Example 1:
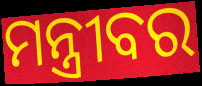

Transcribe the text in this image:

ମନ୍ତ୍ରୀବର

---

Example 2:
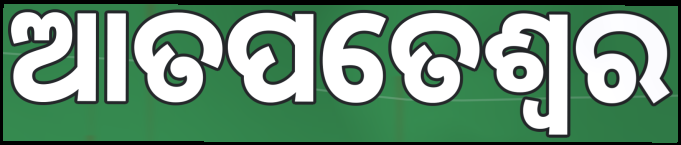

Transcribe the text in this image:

ଆତପତେଶ୍ୱର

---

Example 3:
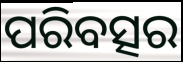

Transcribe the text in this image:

ପରିବତ୍ସର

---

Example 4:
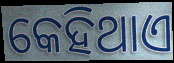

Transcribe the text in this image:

କେହିଥାଏ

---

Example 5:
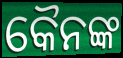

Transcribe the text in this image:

କୈନଙ୍କ